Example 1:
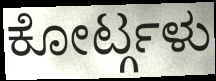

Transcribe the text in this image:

ಕೋರ್ಟ್ಗಳು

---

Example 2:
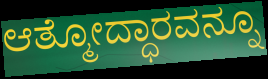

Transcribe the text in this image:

ಆತ್ಮೋದ್ಧಾರವನ್ನೂ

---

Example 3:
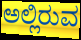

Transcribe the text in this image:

ಅಲ್ಲಿರುವ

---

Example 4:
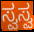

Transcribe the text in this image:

ಸ್ವಸ್ವ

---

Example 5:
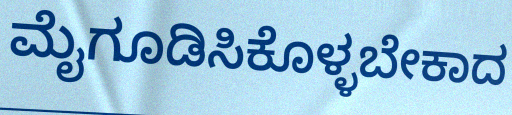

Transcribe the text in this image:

ಮೈಗೂಡಿಸಿಕೊಳ್ಳಬೇಕಾದ